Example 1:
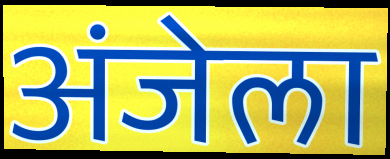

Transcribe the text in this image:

अंजेला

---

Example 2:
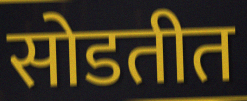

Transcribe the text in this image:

सोडतीत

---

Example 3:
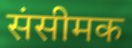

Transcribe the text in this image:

संसीमक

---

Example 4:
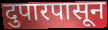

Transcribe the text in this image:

दुपारपासून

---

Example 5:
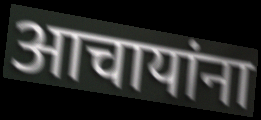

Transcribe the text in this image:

आचायांना